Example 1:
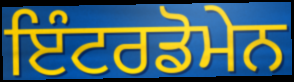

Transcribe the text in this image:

ਇੰਟਰਡੋਮੇਨ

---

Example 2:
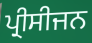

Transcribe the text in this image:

ਪ੍ਰੀਸੀਜਨ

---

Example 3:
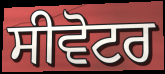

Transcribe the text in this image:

ਸੀਵੋਟਰ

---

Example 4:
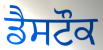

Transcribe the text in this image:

ਡੈਸਟੌਕ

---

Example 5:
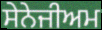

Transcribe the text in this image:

ਸੇਨੇਜੀਅਮ